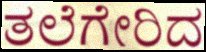
ತಲೆಗೇರಿದ